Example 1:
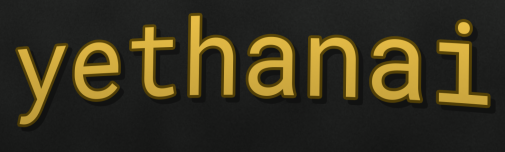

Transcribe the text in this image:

yethanai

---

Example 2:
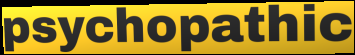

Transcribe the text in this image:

psychopathic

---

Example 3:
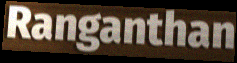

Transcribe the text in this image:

Ranganthan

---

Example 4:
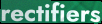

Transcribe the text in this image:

rectifiers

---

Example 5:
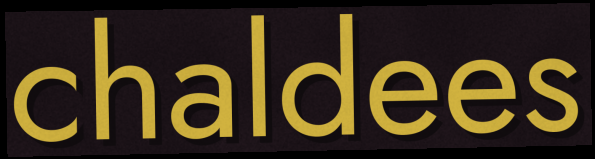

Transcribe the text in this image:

chaldees